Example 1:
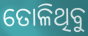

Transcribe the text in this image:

ତୋଳିଥିବୁ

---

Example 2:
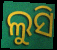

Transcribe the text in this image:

ଲୁସି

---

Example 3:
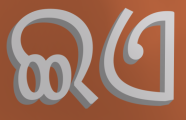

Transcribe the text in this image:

ଇଏ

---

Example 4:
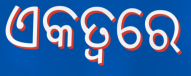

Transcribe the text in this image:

ଏକତ୍ୱରେ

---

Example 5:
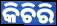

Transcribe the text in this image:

କିଚିରି